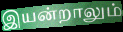
இயன்றாலும்